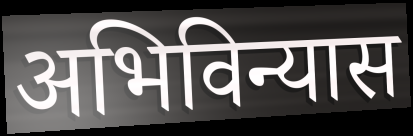
अभिविन्यास